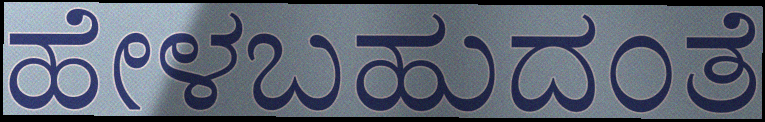
ಹೇಳಬಹುದಂತೆ